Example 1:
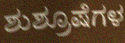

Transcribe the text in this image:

ಶುಶ್ರೂಷೆಗಳ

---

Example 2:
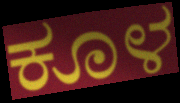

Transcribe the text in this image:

ಕೂಳ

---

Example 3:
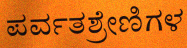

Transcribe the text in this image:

ಪರ್ವತಶ್ರೇಣಿಗಳ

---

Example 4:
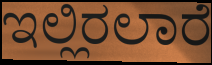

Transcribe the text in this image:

ಇಲ್ಲಿರಲಾರೆ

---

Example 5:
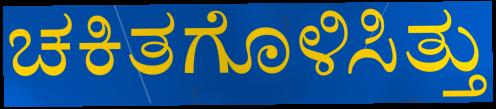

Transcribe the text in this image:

ಚಕಿತಗೊಳಿಸಿತ್ತು